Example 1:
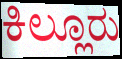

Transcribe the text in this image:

ಕಿಲ್ಲೂರು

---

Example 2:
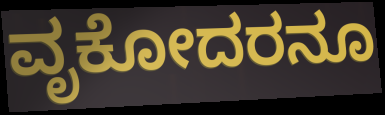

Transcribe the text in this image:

ವೃಕೋದರನೂ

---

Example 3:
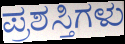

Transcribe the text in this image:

ಪ್ರಶಸ್ತಿಗಳು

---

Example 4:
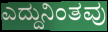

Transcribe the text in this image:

ಎದ್ದುನಿಂತವು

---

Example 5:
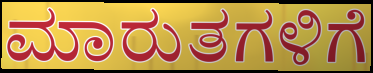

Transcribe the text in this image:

ಮಾರುತಗಳಿಗೆ